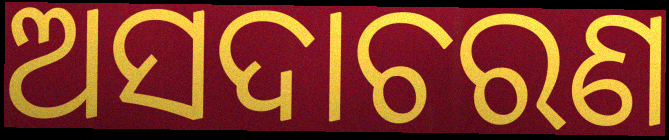
ଅସଦାଚରଣ